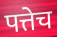
पत्तेच